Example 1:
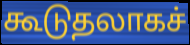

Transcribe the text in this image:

கூடுதலாகச்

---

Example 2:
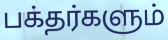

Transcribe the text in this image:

பக்தர்களும்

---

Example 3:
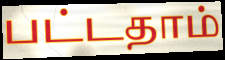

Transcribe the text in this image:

பட்டதாம்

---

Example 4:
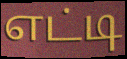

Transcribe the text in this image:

எட்டி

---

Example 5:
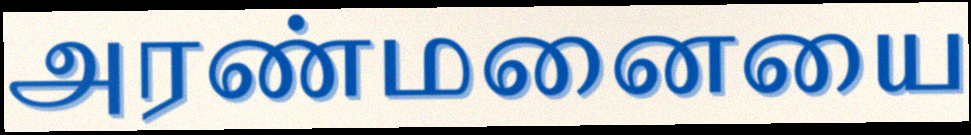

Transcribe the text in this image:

அரண்மனையை